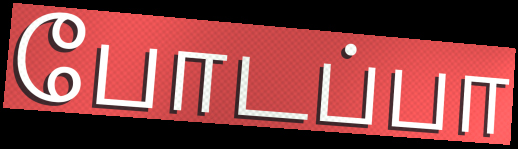
போடப்பா